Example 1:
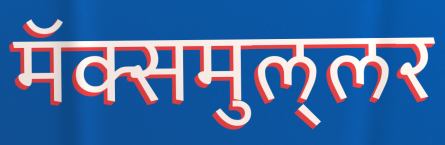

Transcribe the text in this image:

मॅक्समुल्लर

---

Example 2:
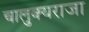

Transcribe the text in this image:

चालुक्यराजा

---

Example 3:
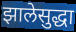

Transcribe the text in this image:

झालेसुद्धा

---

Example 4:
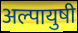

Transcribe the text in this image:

अल्पायुषी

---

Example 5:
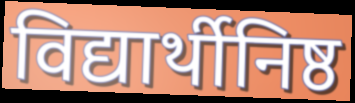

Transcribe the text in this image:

विद्यार्थीनिष्ठ